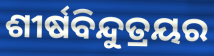
ଶୀର୍ଷବିନ୍ଦୁତ୍ରୟର